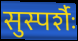
सुस्पर्शैः